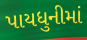
પાયધુનીમાં